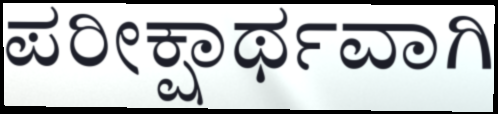
ಪರೀಕ್ಷಾರ್ಥವಾಗಿ